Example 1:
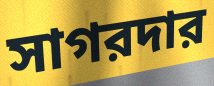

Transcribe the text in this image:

সাগরদার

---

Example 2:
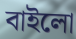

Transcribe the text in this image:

বাইলো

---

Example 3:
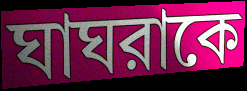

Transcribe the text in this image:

ঘাঘরাকে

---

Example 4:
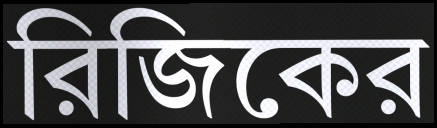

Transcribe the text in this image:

রিজিকের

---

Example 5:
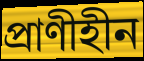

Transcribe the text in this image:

প্রাণীহীন